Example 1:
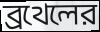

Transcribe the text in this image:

ব্রথেলের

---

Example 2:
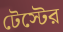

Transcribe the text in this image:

টেস্টের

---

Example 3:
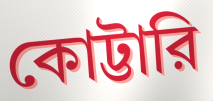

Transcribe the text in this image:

কোট্টারি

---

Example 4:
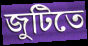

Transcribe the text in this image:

জুটিতে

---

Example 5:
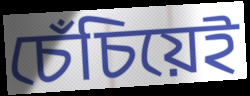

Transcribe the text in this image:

চেঁচিয়েই